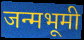
जन्मभूमी